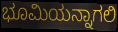
ಭೂಮಿಯನ್ನಾಗಲಿ